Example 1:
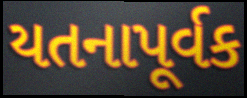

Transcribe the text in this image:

યતનાપૂર્વક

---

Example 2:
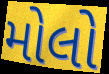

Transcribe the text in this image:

મોલો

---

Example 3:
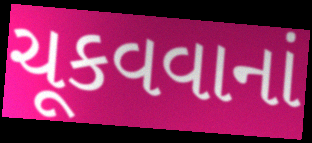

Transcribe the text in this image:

ચૂકવવાનાં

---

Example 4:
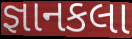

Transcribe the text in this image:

જ્ઞાનકલા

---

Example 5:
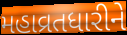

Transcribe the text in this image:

મહાવ્રતધારીને